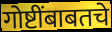
गोष्टींबाबतचे